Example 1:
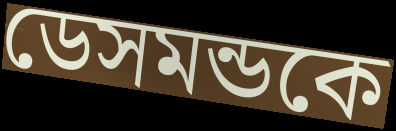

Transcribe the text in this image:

ডেসমন্ডকে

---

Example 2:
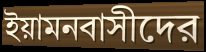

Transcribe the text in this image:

ইয়ামনবাসীদের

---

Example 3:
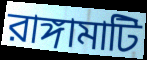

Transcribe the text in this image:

রাঙ্গামাটি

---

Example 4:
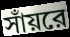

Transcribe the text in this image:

সাঁয়রে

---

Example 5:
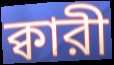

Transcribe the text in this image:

ক্বারী